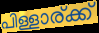
പിള്ളാര്ക്ക്